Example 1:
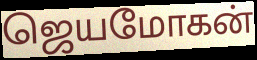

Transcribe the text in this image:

ஜெயமோகன்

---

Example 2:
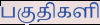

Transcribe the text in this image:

பகுதிகளி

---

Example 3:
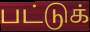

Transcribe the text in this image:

பட்டுக்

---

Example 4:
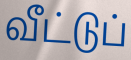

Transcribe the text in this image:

வீட்டுப்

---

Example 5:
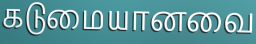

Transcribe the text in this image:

கடுமையானவை